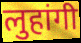
लुहांगी